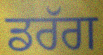
ਡਰੱਗ